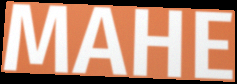
MAHE